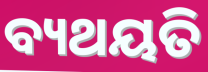
ବ୍ୟଥୟତି